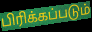
பிரிக்கப்படும்